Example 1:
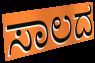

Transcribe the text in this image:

ಸಾಲದ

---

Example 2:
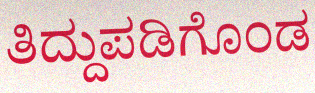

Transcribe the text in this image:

ತಿದ್ದುಪಡಿಗೊಂಡ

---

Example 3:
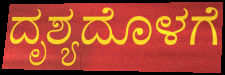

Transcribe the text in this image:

ದೃಶ್ಯದೊಳಗೆ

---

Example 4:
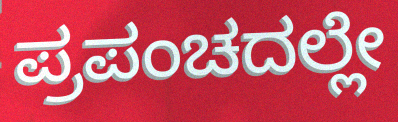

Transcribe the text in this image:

ಪ್ರಪಂಚದಲ್ಲೇ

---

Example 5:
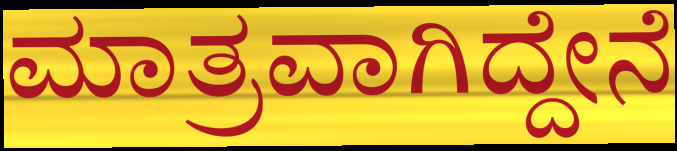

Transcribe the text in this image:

ಮಾತ್ರವಾಗಿದ್ದೇನೆ